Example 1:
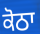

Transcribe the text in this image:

ਕੋਠਾ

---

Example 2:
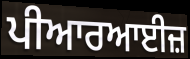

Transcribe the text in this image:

ਪੀਆਰਆਈਜ਼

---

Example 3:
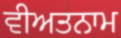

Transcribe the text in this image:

ਵੀਅਤਨਾਮ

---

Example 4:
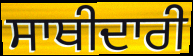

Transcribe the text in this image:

ਸਾਥੀਦਾਰੀ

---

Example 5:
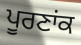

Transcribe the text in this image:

ਪੂਰਣਾਂਕ